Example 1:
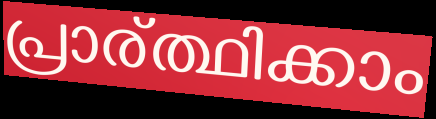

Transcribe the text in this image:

പ്രാര്ത്ഥിക്കാം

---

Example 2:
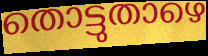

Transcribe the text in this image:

തൊട്ടുതാഴെ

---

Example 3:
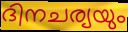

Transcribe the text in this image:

ദിനചര്യയും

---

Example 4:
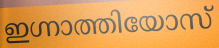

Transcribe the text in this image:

ഇഗ്നാത്തിയോസ്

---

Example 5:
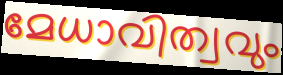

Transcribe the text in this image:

മേധാവിത്വവും